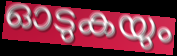
ഓടുകയും